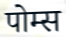
पोम्स